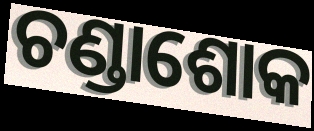
ଚଣ୍ଡାଶୋକ